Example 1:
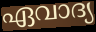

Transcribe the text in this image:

ഏവാദ്യ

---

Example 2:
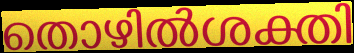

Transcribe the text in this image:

തൊഴിൽശക്തി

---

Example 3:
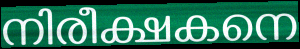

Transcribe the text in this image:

നിരീക്ഷകനെ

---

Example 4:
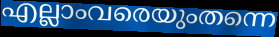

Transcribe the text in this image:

എല്ലാംവരെയുംതന്നെ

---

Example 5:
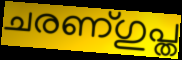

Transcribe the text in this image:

ചരണ്ഗുപ്ത